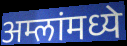
अम्लांमध्ये